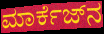
ಮಾರ್ಕೆಜ್‌ನ